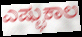
ಎಷ್ಟುಕಾಲ